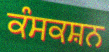
ਕੰਸਕਸ਼ਨ